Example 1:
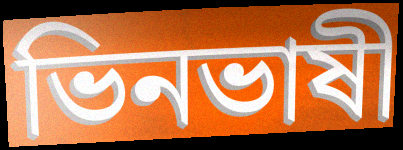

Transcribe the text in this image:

ভিনভাষী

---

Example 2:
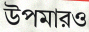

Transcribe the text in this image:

উপমারও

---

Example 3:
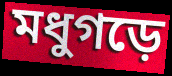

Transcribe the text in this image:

মধুগড়ে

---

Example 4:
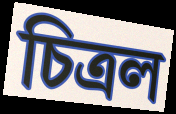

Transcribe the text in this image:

চিত্রল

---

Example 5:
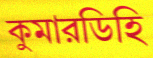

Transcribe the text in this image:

কুমারডিহি